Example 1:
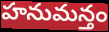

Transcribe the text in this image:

హనుమన్తం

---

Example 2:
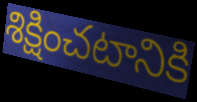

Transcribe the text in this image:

శిక్షించటానికి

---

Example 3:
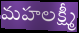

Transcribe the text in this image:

మహలక్ష్మీ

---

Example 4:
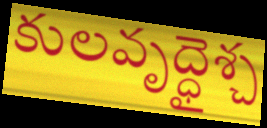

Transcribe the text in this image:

కులవృద్ధైశ్చ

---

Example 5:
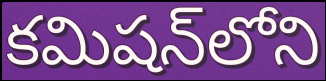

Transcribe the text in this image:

కమిషన్‌లోని